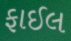
ફાઈલ